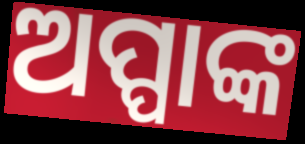
ଅପ୍ପାଙ୍କ